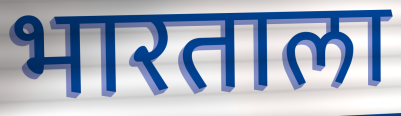
भारताला